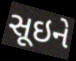
સૂઇને